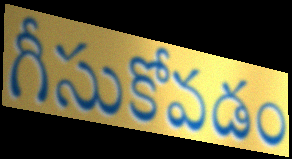
గీసుకోవడం